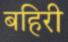
बहिरी